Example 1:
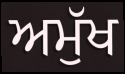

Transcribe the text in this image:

ਅਮੁੱਖ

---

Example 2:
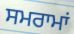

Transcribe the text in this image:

ਸਮਰਾਮਾਂ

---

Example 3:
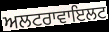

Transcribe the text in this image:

ਅਲਟਰਾਵਾਇਲਟ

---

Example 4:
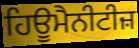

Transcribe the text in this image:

ਹਿਊਮੈਨੀਟੀਜ਼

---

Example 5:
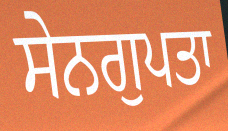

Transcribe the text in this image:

ਸੇਨਗੁਪਤਾ